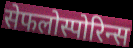
सेफलोस्पोरिन्स